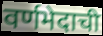
वर्णभेदाची